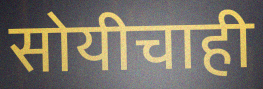
सोयीचाही